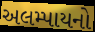
અલમ્પાયનો